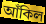
আঁকিল